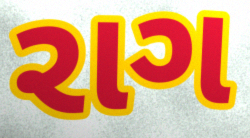
રાગ